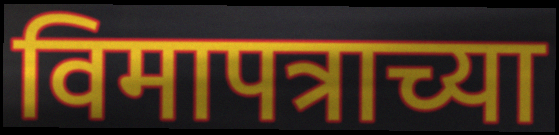
विमापत्राच्या